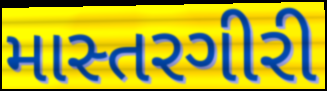
માસ્તરગીરી